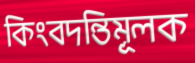
কিংবদন্তিমূলক